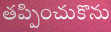
తప్పించుకొను